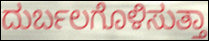
ದುರ್ಬಲಗೊಳಿಸುತ್ತಾ